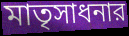
মাতৃসাধনার